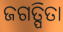
ଜଗତ୍ପିତା